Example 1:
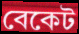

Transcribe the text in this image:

বেকেট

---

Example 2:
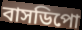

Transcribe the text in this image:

বাসডিপো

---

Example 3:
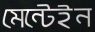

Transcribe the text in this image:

মেন্টেইন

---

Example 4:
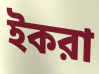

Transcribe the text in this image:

ইকরা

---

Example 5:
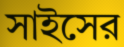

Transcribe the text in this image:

সাইসের